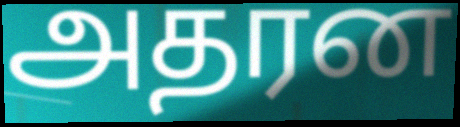
அதரன